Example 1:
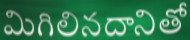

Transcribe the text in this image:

మిగిలినదానితో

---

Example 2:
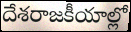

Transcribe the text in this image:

దేశరాజకీయాల్లో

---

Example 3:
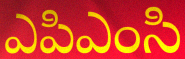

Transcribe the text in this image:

ఎపిఎంసి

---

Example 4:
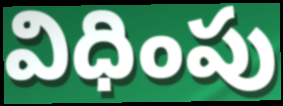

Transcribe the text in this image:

విధింపు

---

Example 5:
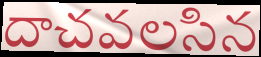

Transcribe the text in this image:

దాచవలసిన